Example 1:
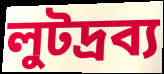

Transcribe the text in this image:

লুটদ্রব্য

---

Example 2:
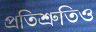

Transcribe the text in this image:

প্রতিশ্রুতিও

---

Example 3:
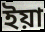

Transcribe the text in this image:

ইয়া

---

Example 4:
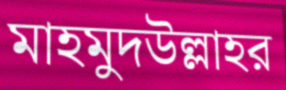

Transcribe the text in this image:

মাহমুদউল্লাহর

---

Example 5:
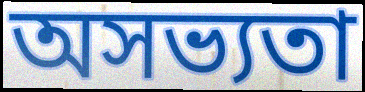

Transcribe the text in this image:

অসভ্যতা